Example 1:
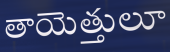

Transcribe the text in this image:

తాయెత్తులూ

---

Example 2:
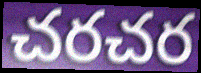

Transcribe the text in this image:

చరచర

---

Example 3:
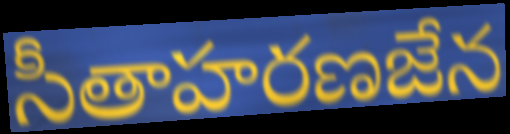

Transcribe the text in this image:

సీతాహరణజేన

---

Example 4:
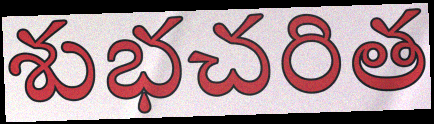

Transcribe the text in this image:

శుభచరిత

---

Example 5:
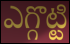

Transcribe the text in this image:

ఎగ్గొట్టి